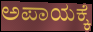
ಅಪಾಯಕ್ಕೆ